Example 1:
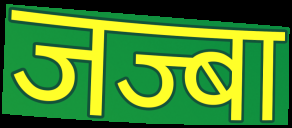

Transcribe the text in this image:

जज्बा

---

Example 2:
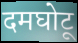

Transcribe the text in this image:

दमघोटू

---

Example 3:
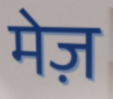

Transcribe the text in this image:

मेज़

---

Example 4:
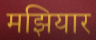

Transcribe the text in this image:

मझियार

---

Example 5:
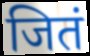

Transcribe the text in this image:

जितं